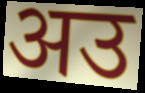
अउ